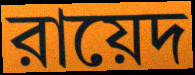
রায়েদ